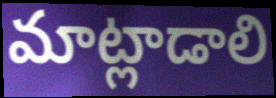
మాట్లాడాలి